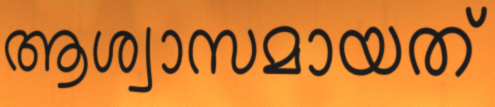
ആശ്വാസമായത്